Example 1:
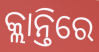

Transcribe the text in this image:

କ୍ଲାନ୍ତିରେ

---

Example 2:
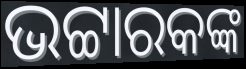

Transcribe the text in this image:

ଭଟ୍ଟାରକଙ୍କ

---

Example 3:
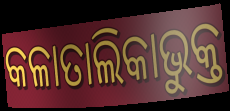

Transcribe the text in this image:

କଳାତାଲିକାଭୁକ୍ତ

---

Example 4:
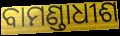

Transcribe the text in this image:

ବାମଣ୍ଡାଧୀଶ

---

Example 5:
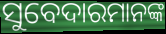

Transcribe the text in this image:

ସୁବେଦାରମାନଙ୍କ